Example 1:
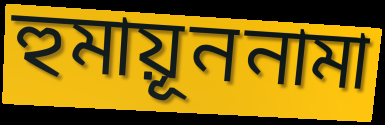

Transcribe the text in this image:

হুমায়ূননামা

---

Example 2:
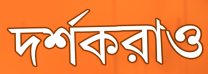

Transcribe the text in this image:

দর্শকরাও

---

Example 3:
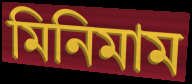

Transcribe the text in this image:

মিনিমাম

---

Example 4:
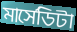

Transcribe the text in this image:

মার্সেডিটা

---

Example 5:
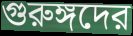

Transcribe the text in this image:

গুরুঙ্গদের